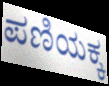
ಪಣಿಯಕ್ಕ